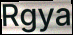
Rgya